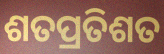
ଶତପ୍ରତିଶତ